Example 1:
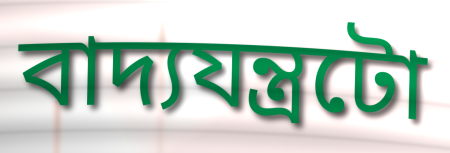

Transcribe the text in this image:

বাদ্যযন্ত্ৰটো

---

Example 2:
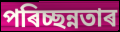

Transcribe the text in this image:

পৰিচ্ছন্নতাৰ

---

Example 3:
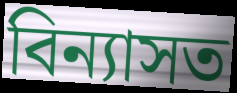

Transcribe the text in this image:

বিন্যাসত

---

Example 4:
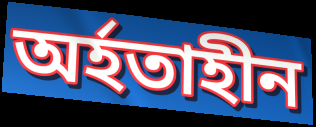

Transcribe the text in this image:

অৰ্হতাহীন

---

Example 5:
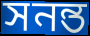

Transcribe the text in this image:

সনন্ত